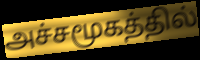
அச்சமூகத்தில்